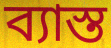
ব্যাস্ত